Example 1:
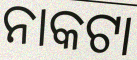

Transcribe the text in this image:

ନାକଟା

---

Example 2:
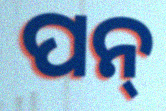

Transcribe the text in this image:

ପନ୍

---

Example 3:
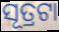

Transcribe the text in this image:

ସୂତ୍ରଟା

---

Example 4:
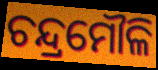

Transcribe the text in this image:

ଚନ୍ଦ୍ରମୌଳି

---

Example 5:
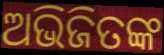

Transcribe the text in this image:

ଅଭିଜିତଙ୍କ